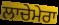
ਲਾਚੇਮੇਰਾ